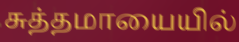
சுத்தமாயையில்